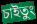
চাইতুং